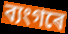
ব্যংগৰে